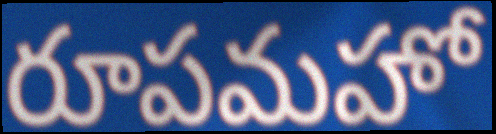
రూపమహో